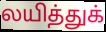
லயித்துக்